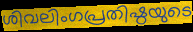
ശിവലിംഗപ്രതിഷ്ഠയുടെ